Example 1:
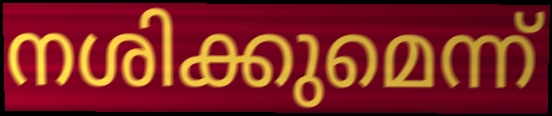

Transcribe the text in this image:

നശിക്കുമെന്ന്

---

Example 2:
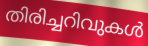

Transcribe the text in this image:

തിരിച്ചറിവുകൾ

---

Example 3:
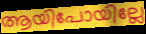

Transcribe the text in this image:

ആയിപോയില്ലേ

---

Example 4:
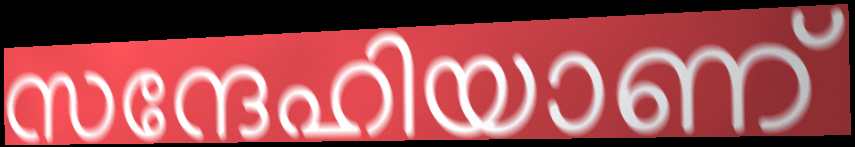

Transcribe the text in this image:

സന്ദേഹിയാണ്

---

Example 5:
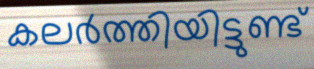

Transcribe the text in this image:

കലർത്തിയിട്ടുണ്ട്